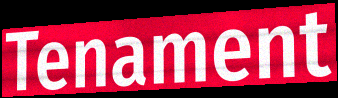
Tenament